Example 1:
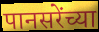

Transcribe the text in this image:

पानसरेंच्या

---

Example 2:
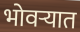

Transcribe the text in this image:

भोवऱ्यात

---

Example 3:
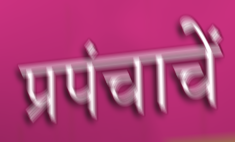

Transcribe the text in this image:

प्रपंचाचें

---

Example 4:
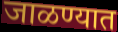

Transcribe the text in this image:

जाळण्यात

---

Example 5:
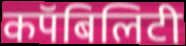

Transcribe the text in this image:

कपॅबिलिटी